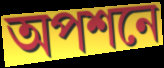
অপশনে